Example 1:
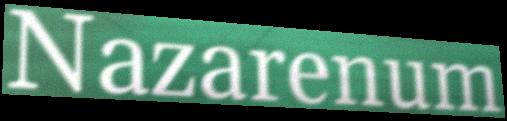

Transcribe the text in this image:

Nazarenum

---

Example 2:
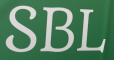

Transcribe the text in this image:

SBL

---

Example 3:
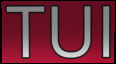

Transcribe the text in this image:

TUI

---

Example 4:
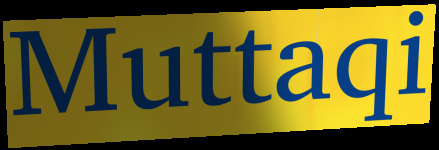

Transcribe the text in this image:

Muttaqi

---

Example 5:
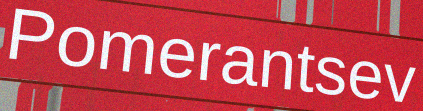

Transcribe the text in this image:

Pomerantsev